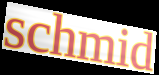
schmid